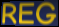
REG